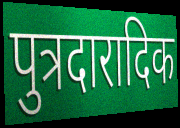
पुत्रदारादिक